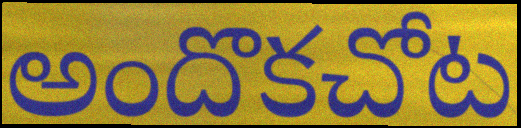
అందొకచోట